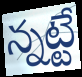
న్నట్టే